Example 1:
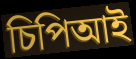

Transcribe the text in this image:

চিপিআই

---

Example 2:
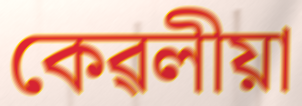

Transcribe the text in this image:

কেৱলীয়া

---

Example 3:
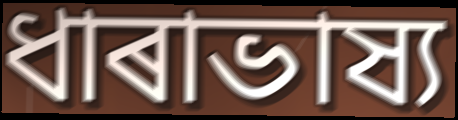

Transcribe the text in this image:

ধাৰাভাষ্য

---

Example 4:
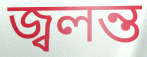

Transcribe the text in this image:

জ্বলন্ত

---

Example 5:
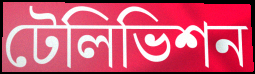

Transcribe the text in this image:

টেলিভিশন